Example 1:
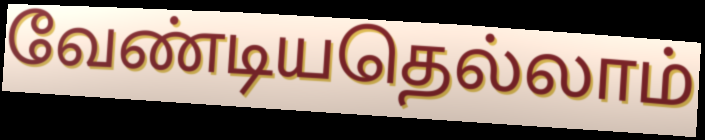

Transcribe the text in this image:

வேண்டியதெல்லாம்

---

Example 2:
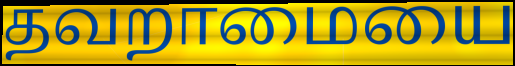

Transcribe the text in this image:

தவறாமையை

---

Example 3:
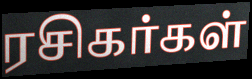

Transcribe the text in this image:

ரசிகர்கள்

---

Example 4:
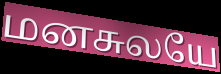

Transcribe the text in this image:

மனசுலயே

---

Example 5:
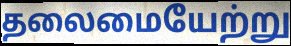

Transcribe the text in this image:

தலைமையேற்று